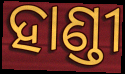
ହାଣ୍ଡୀ